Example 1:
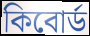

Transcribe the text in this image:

কিবোর্ড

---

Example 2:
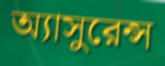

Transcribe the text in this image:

অ্যাসুরেন্স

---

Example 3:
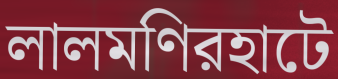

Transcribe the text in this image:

লালমণিরহাটে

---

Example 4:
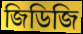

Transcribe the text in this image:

জিডিজি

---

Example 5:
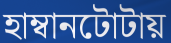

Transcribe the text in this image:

হাম্বানটোটায়